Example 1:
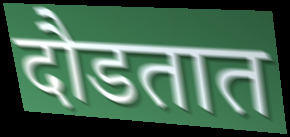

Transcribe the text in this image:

दौडतात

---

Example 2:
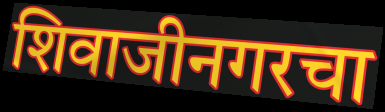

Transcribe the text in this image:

शिवाजीनगरचा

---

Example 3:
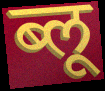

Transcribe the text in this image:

ब्लू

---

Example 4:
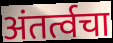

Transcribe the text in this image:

अंतर्त्वचा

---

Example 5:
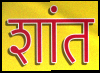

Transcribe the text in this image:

शांत